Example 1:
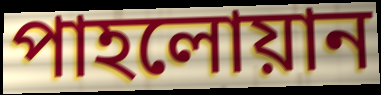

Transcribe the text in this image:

পাহলোয়ান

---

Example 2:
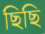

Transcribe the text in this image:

ছিছি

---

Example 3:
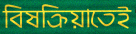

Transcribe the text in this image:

বিষক্রিয়াতেই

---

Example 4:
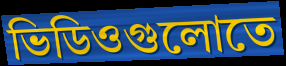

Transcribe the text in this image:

ভিডিওগুলোতে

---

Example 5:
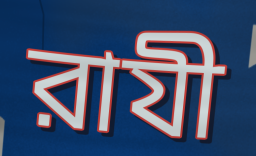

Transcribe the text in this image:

রাযী